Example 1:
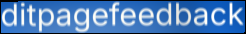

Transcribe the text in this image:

ditpagefeedback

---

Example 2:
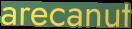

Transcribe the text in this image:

arecanut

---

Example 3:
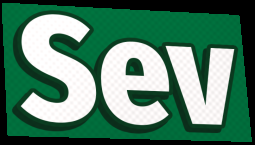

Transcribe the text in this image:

Sev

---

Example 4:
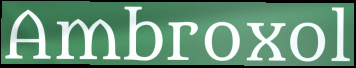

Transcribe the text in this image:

Ambroxol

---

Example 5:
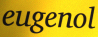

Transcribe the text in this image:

eugenol